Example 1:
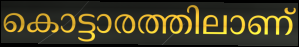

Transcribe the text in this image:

കൊട്ടാരത്തിലാണ്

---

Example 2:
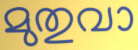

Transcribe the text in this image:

മുതുവാ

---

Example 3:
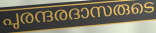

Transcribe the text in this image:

പുരന്ദരദാസരുടെ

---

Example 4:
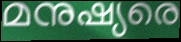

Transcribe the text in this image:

മനുഷ്യരെ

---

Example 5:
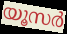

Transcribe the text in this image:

യൂസർ